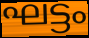
ഘട്ടം